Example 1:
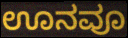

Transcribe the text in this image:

ಊನವೂ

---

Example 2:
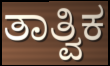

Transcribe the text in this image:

ತಾತ್ವಿಕ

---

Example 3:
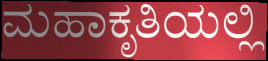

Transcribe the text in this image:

ಮಹಾಕೃತಿಯಲ್ಲಿ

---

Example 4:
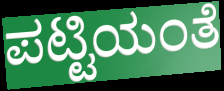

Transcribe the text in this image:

ಪಟ್ಟಿಯಂತೆ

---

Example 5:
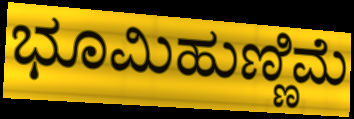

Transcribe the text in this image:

ಭೂಮಿಹುಣ್ಣಿಮೆ